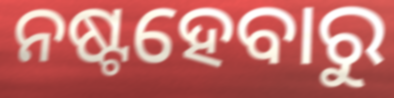
ନଷ୍ଟହେବାରୁ